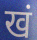
खं